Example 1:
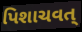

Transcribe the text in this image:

પિશાચવત્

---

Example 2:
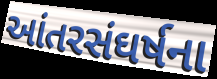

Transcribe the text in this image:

આંતરસંઘર્ષના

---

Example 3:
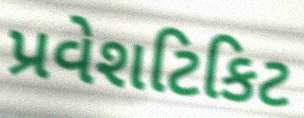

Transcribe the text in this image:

પ્રવેશટિકિટ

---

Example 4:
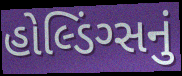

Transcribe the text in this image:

હોલ્ડિંગ્સનું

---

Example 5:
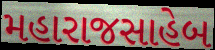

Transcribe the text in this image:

મહારાજસાહેબ